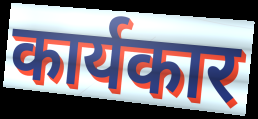
कार्यकार